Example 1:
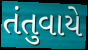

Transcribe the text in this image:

તંતુવાયે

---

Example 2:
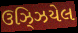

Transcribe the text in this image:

ઉઝ્ઝિયેલ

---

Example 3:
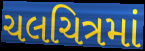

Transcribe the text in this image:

ચલચિત્રમાં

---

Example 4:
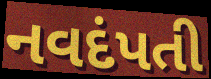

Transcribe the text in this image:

નવદંપતી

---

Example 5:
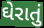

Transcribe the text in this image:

ઘેરાતું